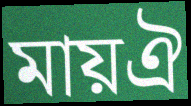
মায়ঐ